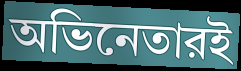
অভিনেতারই